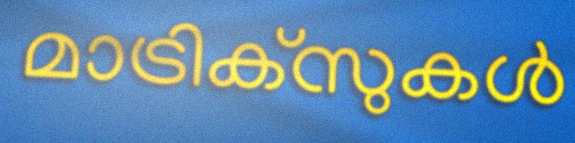
മാട്രിക്സുകൾ